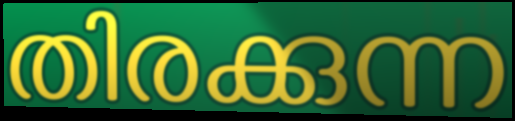
തിരക്കുന്ന